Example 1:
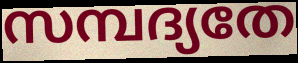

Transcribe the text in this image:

സമ്പദ്യതേ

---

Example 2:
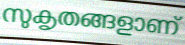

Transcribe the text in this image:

സുകൃതങ്ങളാണ്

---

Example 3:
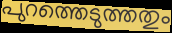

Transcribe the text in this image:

പുറത്തെടുത്തതും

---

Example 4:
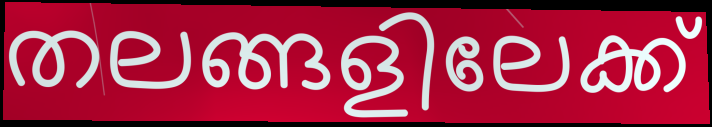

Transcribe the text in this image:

തലങ്ങളിലേക്ക്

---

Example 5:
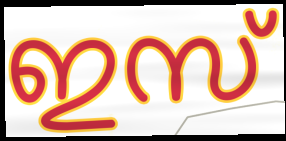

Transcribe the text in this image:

ഇസ്